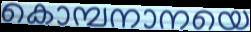
കൊമ്പനാനയെ